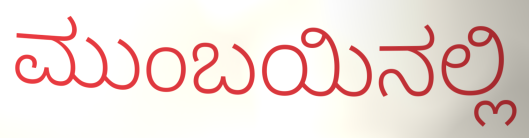
ಮುಂಬಯಿನಲ್ಲಿ